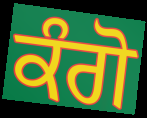
ਕੰਗੋ